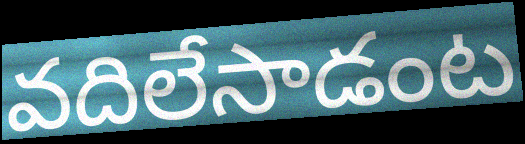
వదిలేసాడంట